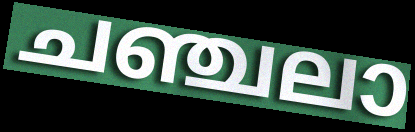
ചഞ്ചലാ